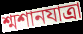
শ্মশানযাত্রা